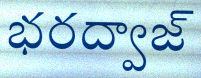
భరద్వాజ్